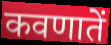
कवणातें